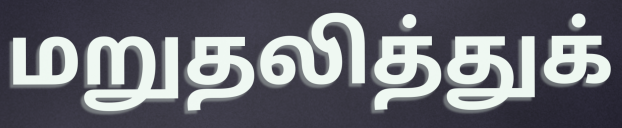
மறுதலித்துக்